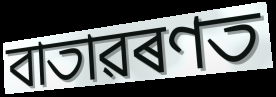
বাতাৱৰণত